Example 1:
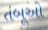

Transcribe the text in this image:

તંબૂઓ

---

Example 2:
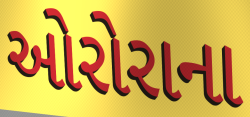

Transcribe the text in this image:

ઓરોરાના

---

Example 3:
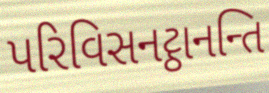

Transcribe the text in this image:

પરિવિસનટ્ઠાનન્તિ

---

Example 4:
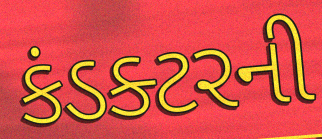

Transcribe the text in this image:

કંડક્ટરની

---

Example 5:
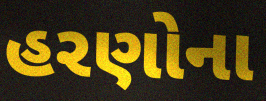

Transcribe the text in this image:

હરણોના